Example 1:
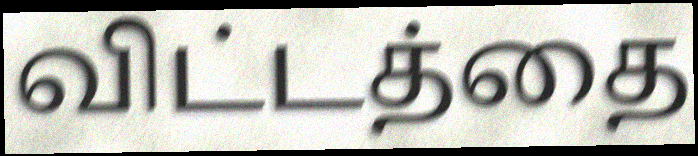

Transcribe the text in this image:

விட்டத்தை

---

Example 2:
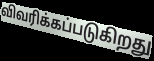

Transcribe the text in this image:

விவரிக்கப்படுகிறது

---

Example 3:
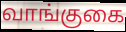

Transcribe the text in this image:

வாங்குகை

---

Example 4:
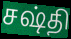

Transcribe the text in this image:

சஷ்தி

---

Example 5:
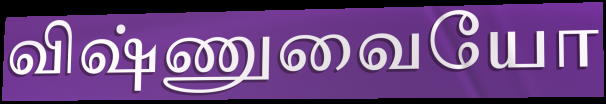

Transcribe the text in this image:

விஷ்ணுவையோ